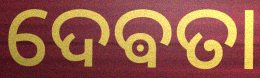
ଦେଵତା